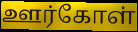
ஊர்கோள்